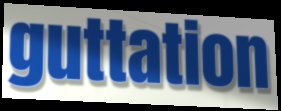
guttation